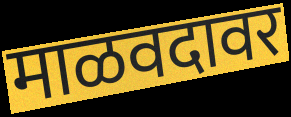
माळवदावर